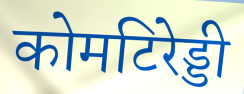
कोमटिरेड्डी